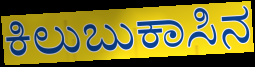
ಕಿಲುಬುಕಾಸಿನ